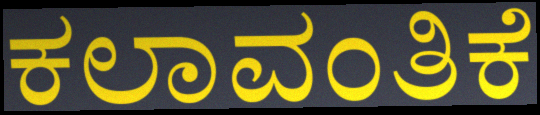
ಕಲಾವಂತಿಕೆ